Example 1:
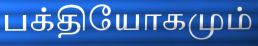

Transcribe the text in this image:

பக்தியோகமும்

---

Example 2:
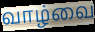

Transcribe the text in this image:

வாழ்வை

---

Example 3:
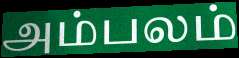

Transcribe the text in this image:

அம்பலம்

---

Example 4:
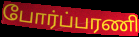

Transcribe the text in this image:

போர்ப்பரணி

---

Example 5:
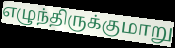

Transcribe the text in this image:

எழுந்திருக்குமாறு